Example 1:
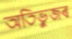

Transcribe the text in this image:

অতিভুজৰ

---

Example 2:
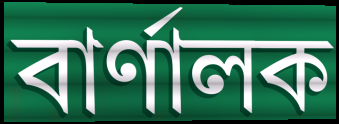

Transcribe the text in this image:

বাৰ্ণালক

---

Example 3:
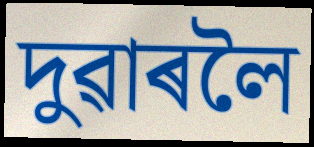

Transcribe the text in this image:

দুৱাৰলৈ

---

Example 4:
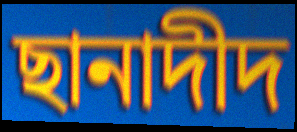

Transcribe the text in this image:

ছানাদীদ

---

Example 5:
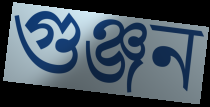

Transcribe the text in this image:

গুঞ্জন